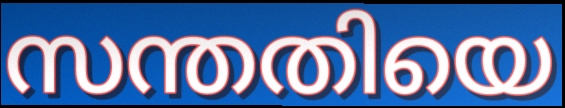
സന്തതിയെ